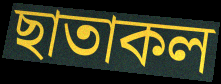
ছাতাকল